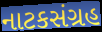
નાટકસંગ્રહ